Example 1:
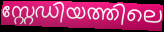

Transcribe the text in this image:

സ്റ്റേഡിയത്തിലെ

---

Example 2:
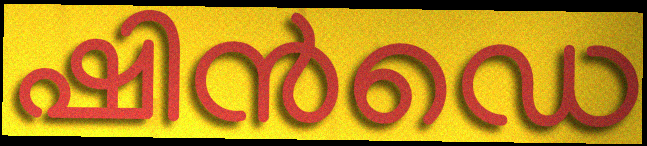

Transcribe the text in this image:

ഷിൻഡെ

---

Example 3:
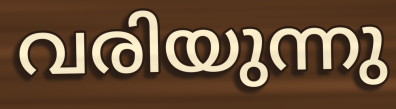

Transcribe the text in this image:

വരിയുന്നു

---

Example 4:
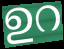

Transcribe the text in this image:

ഉറ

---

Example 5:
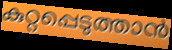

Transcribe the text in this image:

കുറ്റപ്പെടുത്താൻ